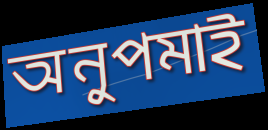
অনুপমাই